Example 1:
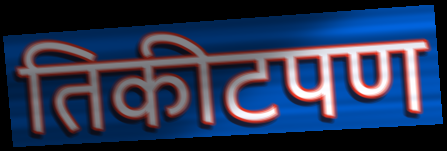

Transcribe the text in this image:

तिकीटपण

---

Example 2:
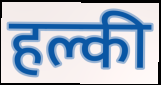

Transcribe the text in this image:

हल्की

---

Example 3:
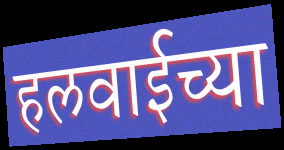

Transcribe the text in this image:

हलवाईच्या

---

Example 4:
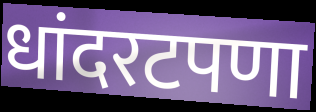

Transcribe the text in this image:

धांदरटपणा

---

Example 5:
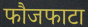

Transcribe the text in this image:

फौजफाटा